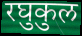
रघुकुल